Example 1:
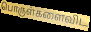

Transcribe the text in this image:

பொருள்களைவிட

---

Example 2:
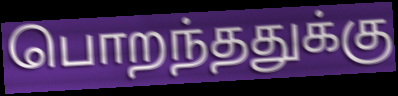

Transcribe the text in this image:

பொறந்ததுக்கு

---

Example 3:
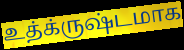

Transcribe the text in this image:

உத்க்ருஷ்டமாக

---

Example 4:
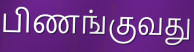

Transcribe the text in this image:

பிணங்குவது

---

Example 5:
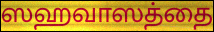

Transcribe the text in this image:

ஸஹவாஸத்தை